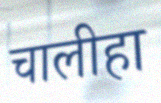
चालीहा